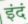
इंदं